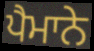
ਪੈਮਾਨੇ